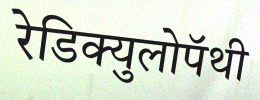
रेडिक्युलोपॅथी